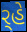
ર્‍હે